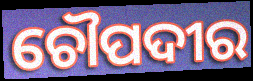
ଚୌପଦୀର